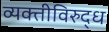
व्यक्तीविरुद्ध